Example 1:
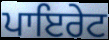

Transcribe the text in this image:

ਪਾਇਰੇਟ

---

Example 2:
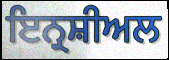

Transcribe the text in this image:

ਇਨ੍ਰਸ਼ੀਅਲ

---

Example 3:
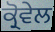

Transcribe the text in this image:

ਕ੍ਰੋਵੇਲ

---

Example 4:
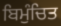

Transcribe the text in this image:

ਬਿਮੁੰਚਿਤ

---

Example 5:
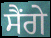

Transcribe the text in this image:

ਸੈਂਗੇ